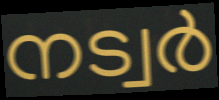
നട്വർ